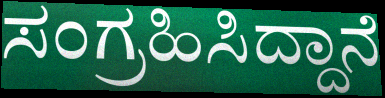
ಸಂಗ್ರಹಿಸಿದ್ದಾನೆ